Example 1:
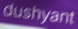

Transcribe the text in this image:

dushyant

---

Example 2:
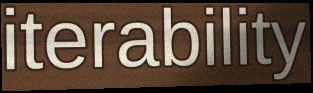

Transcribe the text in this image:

iterability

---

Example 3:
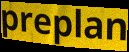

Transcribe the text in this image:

preplan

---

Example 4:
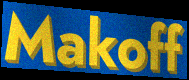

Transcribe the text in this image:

Makoff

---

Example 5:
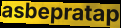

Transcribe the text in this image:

asbepratap